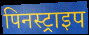
पिनस्ट्राइप